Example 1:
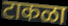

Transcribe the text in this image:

टाकळा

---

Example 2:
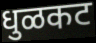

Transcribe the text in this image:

धुळकट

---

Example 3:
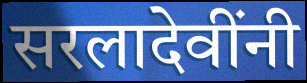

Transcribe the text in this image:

सरलादेवींनी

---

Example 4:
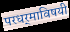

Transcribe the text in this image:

परधर्माविषयी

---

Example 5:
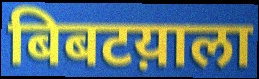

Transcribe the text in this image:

बिबटय़ाला